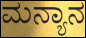
ಮನ್ಯಾನ